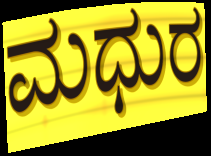
ಮಧುರ